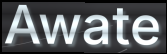
Awate